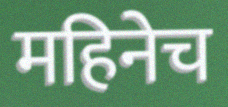
महिनेच